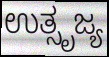
ಉತ್ಸೃಜ್ಯ